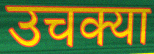
उचक्या